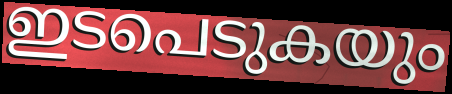
ഇടപെടുകയും